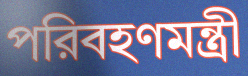
পরিবহণমন্ত্রী